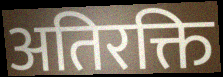
अतिरक्ति